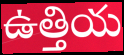
ఉత్తియ